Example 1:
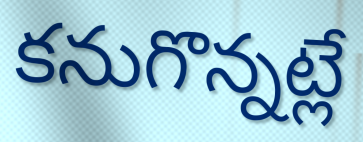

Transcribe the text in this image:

కనుగొన్నట్లే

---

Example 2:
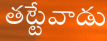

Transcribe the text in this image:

తట్టేవాడు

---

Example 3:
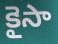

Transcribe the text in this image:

కైసా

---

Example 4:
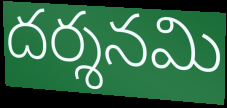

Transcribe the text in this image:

దర్శనమి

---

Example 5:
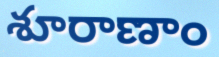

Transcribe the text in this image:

శూరాణాం